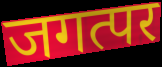
जगत्पर